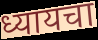
ध्यायचा